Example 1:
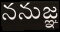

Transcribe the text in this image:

ననుజ్ఞ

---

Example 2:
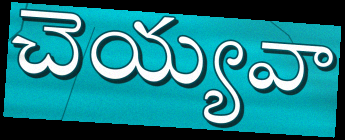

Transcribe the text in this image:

చెయ్యవా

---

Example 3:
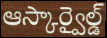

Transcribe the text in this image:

ఆస్కార్వైల్డ్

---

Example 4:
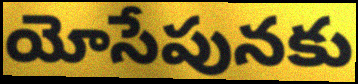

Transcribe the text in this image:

యోసేపునకు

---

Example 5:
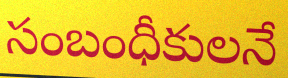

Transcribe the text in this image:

సంబంధీకులనే